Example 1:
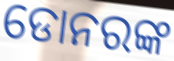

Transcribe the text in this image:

ଡୋନରଙ୍କ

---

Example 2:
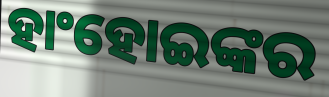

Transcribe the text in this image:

ହାଂହୋଇଙ୍କର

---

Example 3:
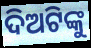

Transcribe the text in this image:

ଦିଅଟିଙ୍କୁ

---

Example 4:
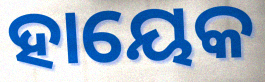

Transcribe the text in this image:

ହାୟେକ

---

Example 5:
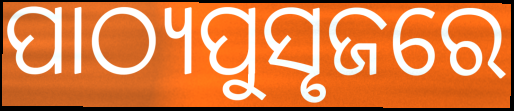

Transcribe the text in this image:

ପାଠ୍ୟପୁସୃଜରେ